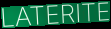
LATERITE